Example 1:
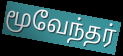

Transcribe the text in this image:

மூவேந்தர்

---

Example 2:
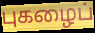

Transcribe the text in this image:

புகழைப்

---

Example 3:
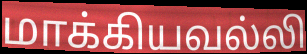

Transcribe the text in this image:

மாக்கியவல்லி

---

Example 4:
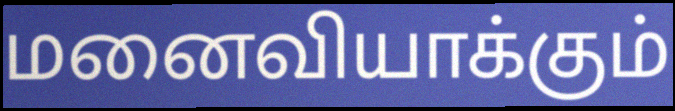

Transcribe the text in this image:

மனைவியாக்கும்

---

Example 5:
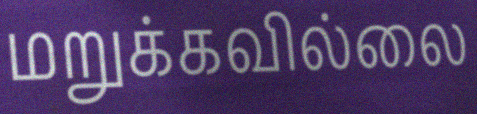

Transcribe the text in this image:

மறுக்கவில்லை